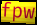
fpw